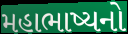
મહાભાષ્યનો